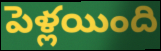
పెళ్లయింది